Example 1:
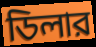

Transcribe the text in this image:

ডিলার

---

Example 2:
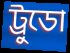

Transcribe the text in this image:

ট্রুডো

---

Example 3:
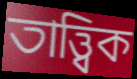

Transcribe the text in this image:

তাত্ত্বিক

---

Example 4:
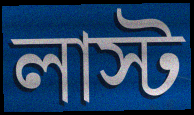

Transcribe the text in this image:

লাস্ট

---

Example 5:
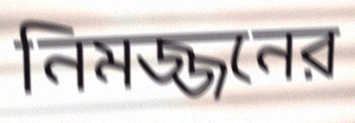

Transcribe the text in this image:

নিমজ্জনের